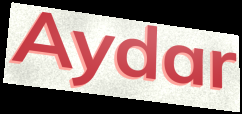
Aydar